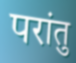
परांतु